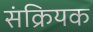
संक्रियक